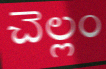
చెల్లం